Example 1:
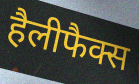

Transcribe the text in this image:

हैलीफैक्स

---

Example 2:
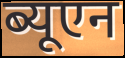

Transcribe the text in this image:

ब्यूएन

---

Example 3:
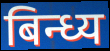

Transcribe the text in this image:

बिन्ध्य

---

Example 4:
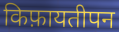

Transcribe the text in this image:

किफ़ायतीपन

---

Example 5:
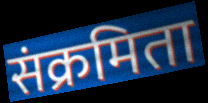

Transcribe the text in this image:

संक्रमिता